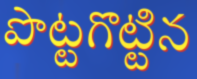
పొట్టగొట్టిన